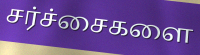
சர்ச்சைகளை